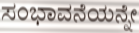
ಸಂಭಾವನೆಯನ್ನೇ